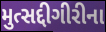
મુત્સદ્દીગીરીના